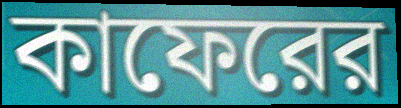
কাফেরের